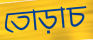
তোড়াচ